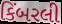
કિંબરલી